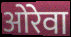
ओरेवा